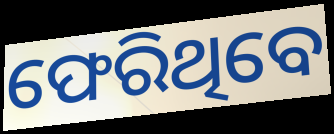
ଫେରିଥିବେ